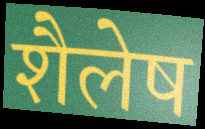
शैलेष